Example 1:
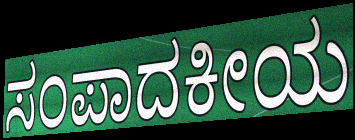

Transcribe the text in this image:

ಸಂಪಾದಕೀಯ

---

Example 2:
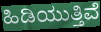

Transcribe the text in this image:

ಹಿಡಿಯುತ್ತಿವೆ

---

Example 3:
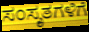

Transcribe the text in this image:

ಸಂಸ್ಕೃತಗಳಿಗೆ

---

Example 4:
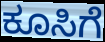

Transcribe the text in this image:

ಕೂಸಿಗೆ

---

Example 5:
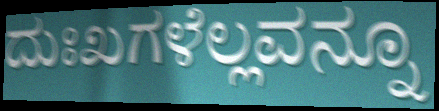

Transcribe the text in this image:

ದುಃಖಗಳೆಲ್ಲವನ್ನೂ